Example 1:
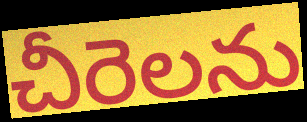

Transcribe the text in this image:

చీరెలను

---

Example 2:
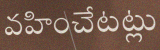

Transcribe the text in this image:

వహించేటట్లు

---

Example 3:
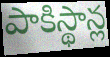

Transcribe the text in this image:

పాకిస్థాన్ల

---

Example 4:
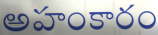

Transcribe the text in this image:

అహంకారం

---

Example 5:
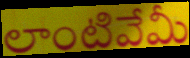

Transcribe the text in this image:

లాంటివేమీ